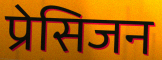
प्रेसिजन